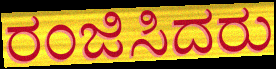
ರಂಜಿಸಿದರು